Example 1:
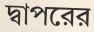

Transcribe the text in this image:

দ্বাপরের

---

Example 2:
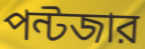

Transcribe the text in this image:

পন্টজার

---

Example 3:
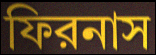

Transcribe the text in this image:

ফিরনাস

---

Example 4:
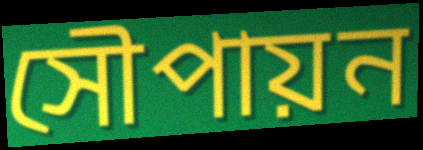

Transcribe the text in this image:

সৌপায়ন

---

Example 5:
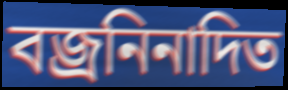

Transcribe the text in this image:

বজ্রনিনাদিত